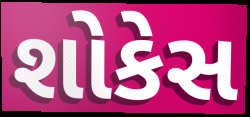
શોકેસ